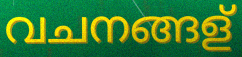
വചനങ്ങള്